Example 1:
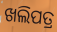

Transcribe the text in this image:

ଖଲିପତ୍ର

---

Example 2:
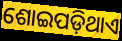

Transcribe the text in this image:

ଶୋଇପଡ଼ିଥାଏ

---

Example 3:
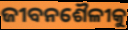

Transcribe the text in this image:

ଜୀବନଶୈଳୀକୁ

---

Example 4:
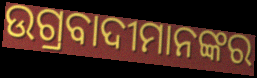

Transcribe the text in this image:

ଉଗ୍ରବାଦୀମାନଙ୍କର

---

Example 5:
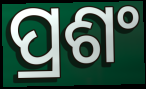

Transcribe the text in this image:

ପ୍ରଶଂ